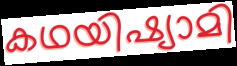
കഥയിഷ്യാമി